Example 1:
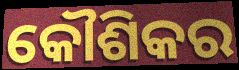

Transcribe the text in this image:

କୌଶିକର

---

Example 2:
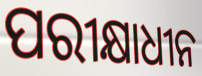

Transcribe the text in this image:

ପରୀକ୍ଷାଧୀନ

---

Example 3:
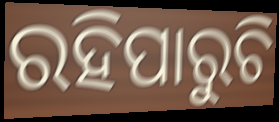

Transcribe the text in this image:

ରହିପାରୁଚି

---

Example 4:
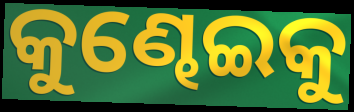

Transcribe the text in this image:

କୁଣ୍ଢେଇକୁ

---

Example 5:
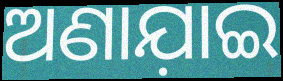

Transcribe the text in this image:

ଅଣାଯ଼ାଇ